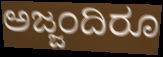
ಅಜ್ಜಂದಿರೂ